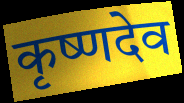
कृष्‍णदेव